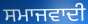
ਸਮਾਜਵਾਦੀ